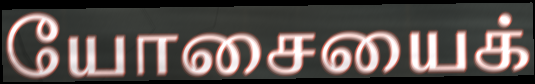
யோசையைக்